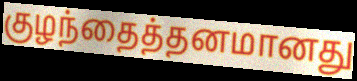
குழந்தைத்தனமானது